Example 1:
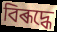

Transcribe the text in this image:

বিৰূদ্ধে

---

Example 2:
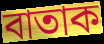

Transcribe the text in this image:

বাতাক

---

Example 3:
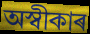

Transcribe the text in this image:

অস্বীকাৰ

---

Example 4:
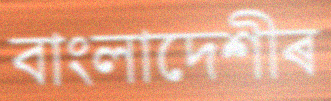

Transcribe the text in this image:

বাংলাদেশীৰ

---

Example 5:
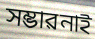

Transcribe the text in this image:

সম্ভাৱনাই